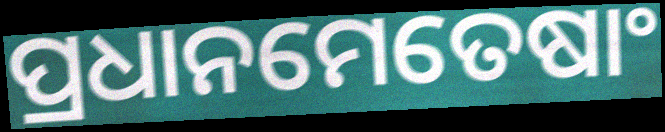
ପ୍ରଧାନମେତେଷାଂ